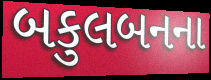
બકુલબનના